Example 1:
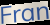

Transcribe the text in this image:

Fran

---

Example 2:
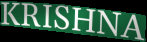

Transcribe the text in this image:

KRISHNA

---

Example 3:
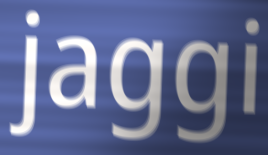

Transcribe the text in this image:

jaggi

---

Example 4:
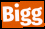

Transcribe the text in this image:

Bigg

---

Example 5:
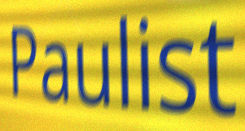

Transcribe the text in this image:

Paulist